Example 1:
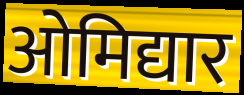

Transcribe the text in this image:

ओमिद्यार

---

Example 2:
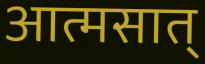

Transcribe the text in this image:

आत्मसात्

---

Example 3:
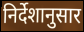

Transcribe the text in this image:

निर्देशानुसार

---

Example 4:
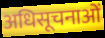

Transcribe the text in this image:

अधिसूचनाओं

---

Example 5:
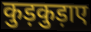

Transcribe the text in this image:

कुड़कुड़ाए